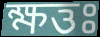
ক্ষত্তঃ